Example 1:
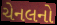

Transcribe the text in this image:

ચેનલનો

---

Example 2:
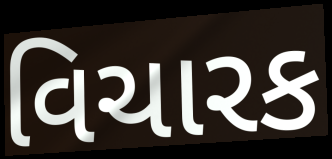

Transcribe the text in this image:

વિચારક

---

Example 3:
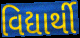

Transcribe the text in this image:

વિદ્યાર્થી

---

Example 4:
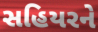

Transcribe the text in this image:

સહિયરને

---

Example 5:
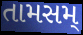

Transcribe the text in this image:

તામસમ્